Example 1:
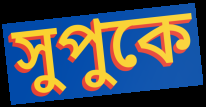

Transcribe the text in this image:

সুপুকে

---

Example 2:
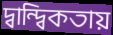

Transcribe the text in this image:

দ্বান্দ্বিকতায়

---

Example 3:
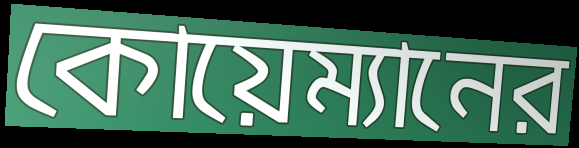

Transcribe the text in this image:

কোয়েম্যানের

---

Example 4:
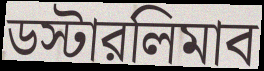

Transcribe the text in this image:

ডস্টারলিমাব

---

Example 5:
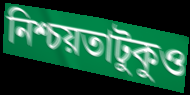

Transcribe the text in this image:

নিশ্চয়তাটুকুও